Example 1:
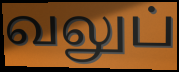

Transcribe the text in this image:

வலுப்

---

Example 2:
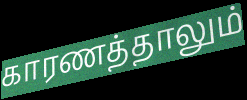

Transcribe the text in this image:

காரணத்தாலும்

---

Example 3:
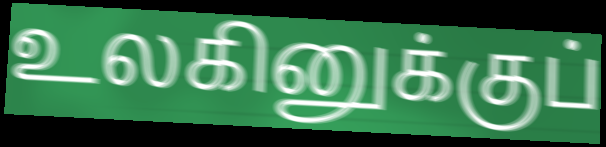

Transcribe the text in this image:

உலகினுக்குப்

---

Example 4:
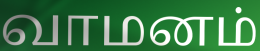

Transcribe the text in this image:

வாமனம்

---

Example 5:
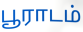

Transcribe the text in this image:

பூராடம்